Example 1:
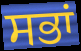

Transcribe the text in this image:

ਸਭਾਂ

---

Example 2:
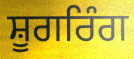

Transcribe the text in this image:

ਸ਼ੂਗਰਿੰਗ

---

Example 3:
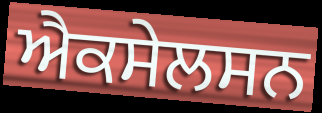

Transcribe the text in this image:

ਐਕਸੇਲਸਨ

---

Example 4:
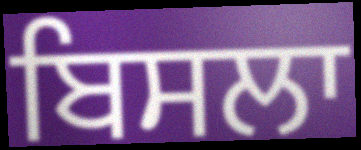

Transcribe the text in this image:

ਬਿਸਲਾ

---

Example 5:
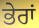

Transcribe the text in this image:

ਭੇਰਾਂ